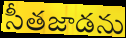
సీతజాడను